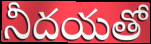
నీదయతో